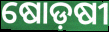
ଷୋଡ଼ଷୀ